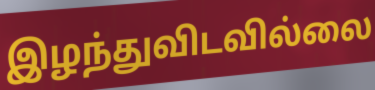
இழந்துவிடவில்லை